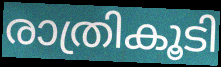
രാത്രികൂടി